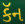
કૅન